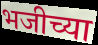
भजीच्या